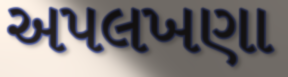
અપલખણા